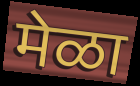
मेळा